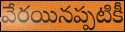
వేరయినప్పటికీ